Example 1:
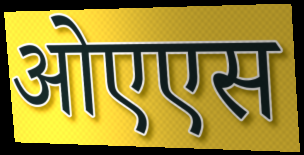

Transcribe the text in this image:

ओएएस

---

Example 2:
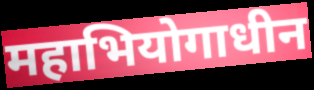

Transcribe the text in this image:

महाभियोगाधीन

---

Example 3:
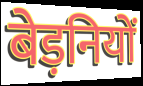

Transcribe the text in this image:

बेड़नियों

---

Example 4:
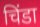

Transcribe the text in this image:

चिंडा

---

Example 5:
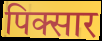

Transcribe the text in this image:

पिक्सार